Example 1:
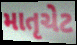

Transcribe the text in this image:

માતૃચેટ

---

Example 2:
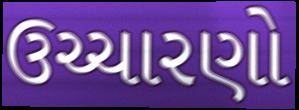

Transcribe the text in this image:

ઉચ્ચારણો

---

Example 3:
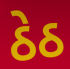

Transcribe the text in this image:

ઠેઠ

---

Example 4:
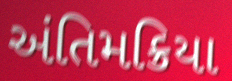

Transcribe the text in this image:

અંતિમક્રિયા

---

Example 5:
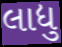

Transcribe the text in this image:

લાદ્યુ